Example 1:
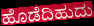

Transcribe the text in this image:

ಹೊಡೆದಿಹುದು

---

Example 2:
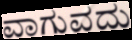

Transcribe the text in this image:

ವಾಗುವದು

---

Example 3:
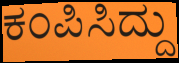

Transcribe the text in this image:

ಕಂಪಿಸಿದ್ದು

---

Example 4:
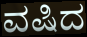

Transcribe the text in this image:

ವಷಿದ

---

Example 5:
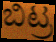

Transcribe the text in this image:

ಬಿಟ್ರ